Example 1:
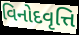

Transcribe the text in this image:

વિનોદવૃત્તિ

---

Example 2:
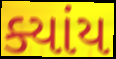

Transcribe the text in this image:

ક્યાંય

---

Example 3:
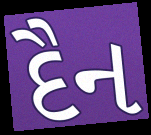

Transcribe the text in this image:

દૈન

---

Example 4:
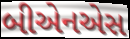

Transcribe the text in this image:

બીએનએસ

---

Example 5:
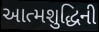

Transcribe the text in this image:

આત્મશુદ્ધિની